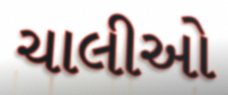
ચાલીઓ